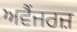
ਅਵੈਂਜਰਜ਼